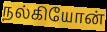
நல்கியோன்